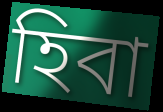
হিবা